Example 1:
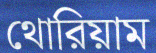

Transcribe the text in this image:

থোরিয়াম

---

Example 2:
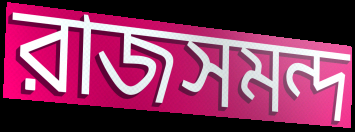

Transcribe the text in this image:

রাজসমন্দ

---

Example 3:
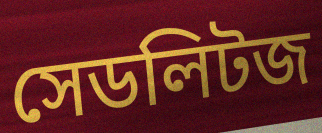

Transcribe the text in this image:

সেডলিটজ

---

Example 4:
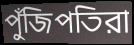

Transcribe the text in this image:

পুঁজিপতিরা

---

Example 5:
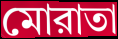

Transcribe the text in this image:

মোরাতা